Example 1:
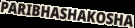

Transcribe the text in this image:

PARIBHASHAKOSHA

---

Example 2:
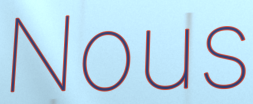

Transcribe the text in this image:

Nous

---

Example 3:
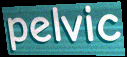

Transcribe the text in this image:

pelvic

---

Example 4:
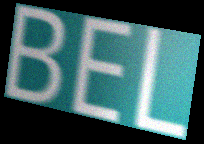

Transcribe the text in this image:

BEL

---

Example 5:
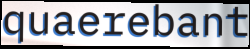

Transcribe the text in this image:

quaerebant